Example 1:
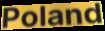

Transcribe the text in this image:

Poland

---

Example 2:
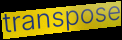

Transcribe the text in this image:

transpose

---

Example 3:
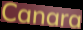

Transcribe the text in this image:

Canara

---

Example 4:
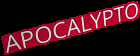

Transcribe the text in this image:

APOCALYPTO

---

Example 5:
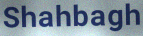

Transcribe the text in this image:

Shahbagh